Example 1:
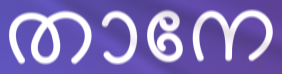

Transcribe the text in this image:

താനേ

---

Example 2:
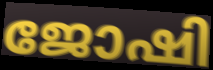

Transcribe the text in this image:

ജോഷി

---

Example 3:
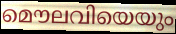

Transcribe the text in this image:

മൌലവിയെയും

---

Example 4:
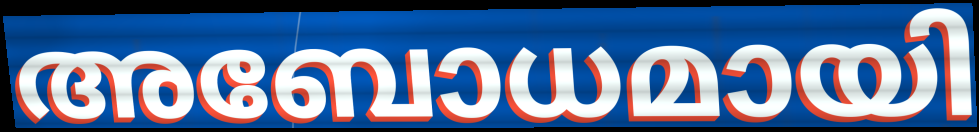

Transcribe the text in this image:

അബോധമായി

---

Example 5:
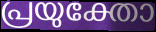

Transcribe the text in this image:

പ്രയുക്തോ